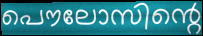
പൌലോസിന്റെ